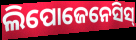
ଲିପୋଜେନେସିସ୍